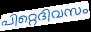
പിറ്റെദിവസം